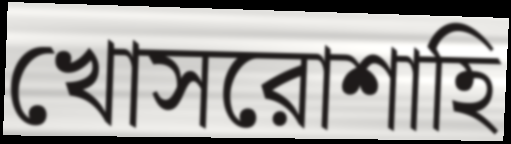
খোসরোশাহি